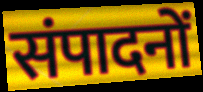
संपादनों